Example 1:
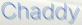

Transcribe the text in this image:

Chaddy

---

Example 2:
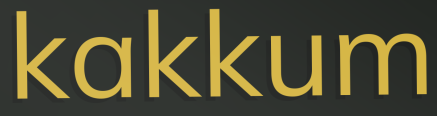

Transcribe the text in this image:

kakkum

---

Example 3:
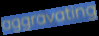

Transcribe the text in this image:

aggravating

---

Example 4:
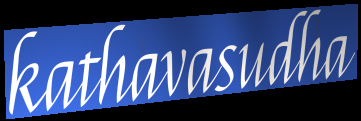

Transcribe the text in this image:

kathavasudha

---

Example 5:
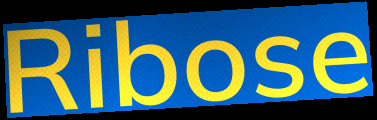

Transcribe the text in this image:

Ribose